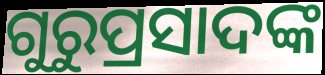
ଗୁରୁପ୍ରସାଦଙ୍କ